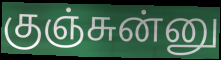
குஞ்சுன்னு